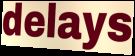
delays